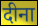
दीना